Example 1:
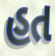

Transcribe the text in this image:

હત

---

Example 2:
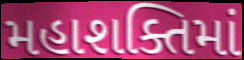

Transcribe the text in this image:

મહાશક્તિમાં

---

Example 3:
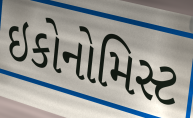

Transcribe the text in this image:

ઇકોનોમિસ્ટ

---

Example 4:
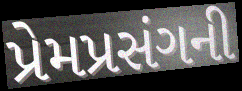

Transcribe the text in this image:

પ્રેમપ્રસંગની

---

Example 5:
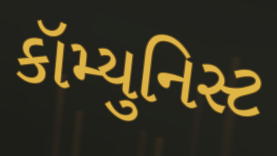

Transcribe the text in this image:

કૉમ્યુનિસ્ટ